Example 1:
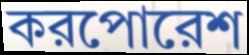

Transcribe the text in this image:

করপোরেশ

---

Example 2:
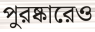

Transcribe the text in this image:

পুরষ্কারেও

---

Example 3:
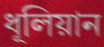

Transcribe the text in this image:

ধূলিয়ান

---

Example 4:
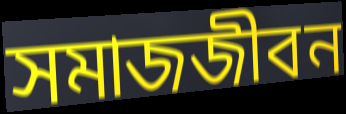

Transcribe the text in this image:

সমাজজীবন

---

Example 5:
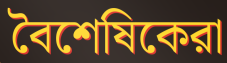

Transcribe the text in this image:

বৈশেষিকেরা